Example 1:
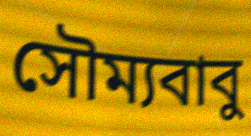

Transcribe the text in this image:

সৌম্যবাবু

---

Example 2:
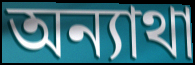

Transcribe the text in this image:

অন্যাথা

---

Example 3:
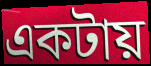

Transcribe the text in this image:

একটায়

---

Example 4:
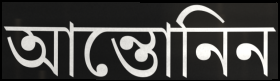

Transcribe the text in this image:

আন্তোনিন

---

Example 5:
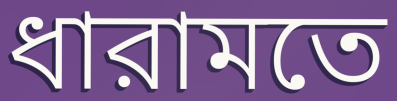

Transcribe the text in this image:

ধারামতে